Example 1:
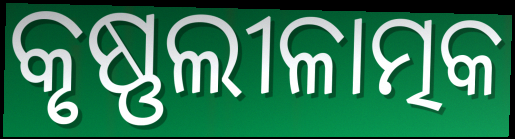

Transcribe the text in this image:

କୃଷ୍ଣଲୀଳାତ୍ମକ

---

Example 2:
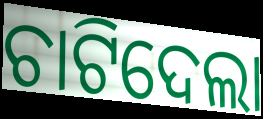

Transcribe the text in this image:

ଚାଟିଦେଲା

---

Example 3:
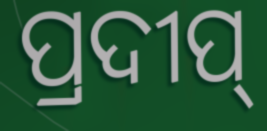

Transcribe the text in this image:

ପ୍ରଦୀପ୍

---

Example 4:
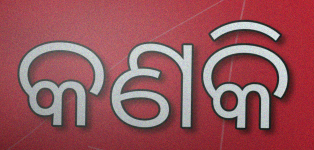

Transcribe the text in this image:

କଣକି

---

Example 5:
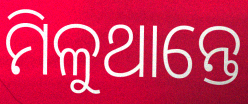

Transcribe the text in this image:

ମିଳୁଥାନ୍ତେ